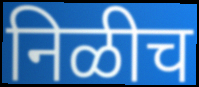
निळीच